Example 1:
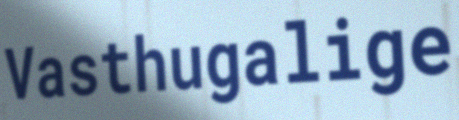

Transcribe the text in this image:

Vasthugalige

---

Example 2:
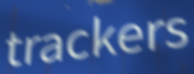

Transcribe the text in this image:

trackers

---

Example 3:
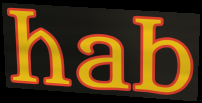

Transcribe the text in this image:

hab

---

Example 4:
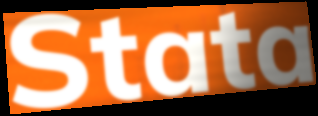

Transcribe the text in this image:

Stata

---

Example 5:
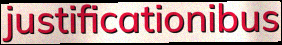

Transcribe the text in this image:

justificationibus